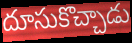
దూసుకొచ్చాడు